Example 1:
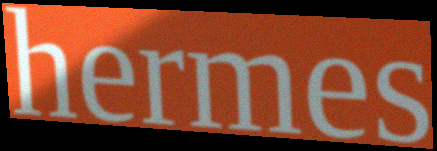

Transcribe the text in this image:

hermes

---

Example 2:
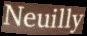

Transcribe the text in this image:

Neuilly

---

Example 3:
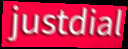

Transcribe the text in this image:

justdial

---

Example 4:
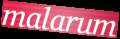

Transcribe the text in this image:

malarum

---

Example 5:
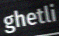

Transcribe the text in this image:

ghetli